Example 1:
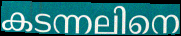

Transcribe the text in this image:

കടന്നലിനെ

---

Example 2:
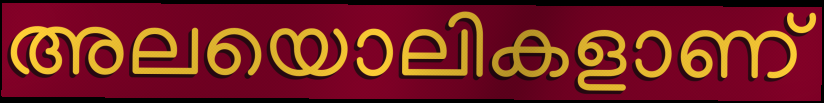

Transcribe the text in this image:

അലയൊലികളാണ്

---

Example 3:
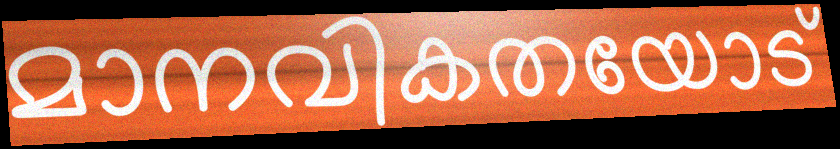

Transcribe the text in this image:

മാനവികതയോട്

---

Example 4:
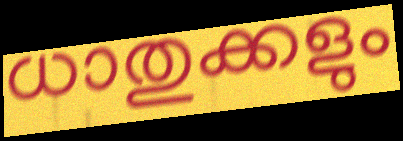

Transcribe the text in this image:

ധാതുക്കളും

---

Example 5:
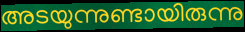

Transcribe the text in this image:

അടയുന്നുണ്ടായിരുന്നു